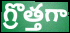
గ్రొత్తగా